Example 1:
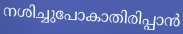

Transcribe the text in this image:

നശിച്ചുപോകാതിരിപ്പാൻ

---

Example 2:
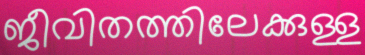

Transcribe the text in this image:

ജീവിതത്തിലേക്കുള്ള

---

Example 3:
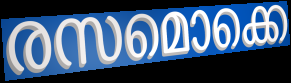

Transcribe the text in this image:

രസമൊക്കെ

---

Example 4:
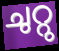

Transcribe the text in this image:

ചുറ്റു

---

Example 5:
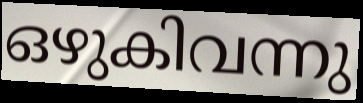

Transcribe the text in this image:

ഒഴുകിവന്നു